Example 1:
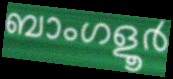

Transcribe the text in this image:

ബാംഗളൂർ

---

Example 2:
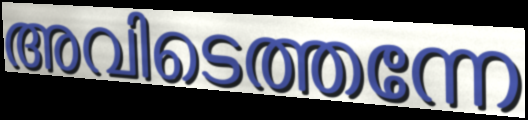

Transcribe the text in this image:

അവിടെത്തന്നേ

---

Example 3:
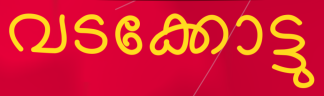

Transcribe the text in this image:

വടക്കോട്ടു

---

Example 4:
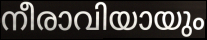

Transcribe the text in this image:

നീരാവിയായും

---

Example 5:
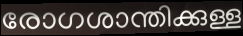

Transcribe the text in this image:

രോഗശാന്തിക്കുള്ള